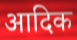
आदिक